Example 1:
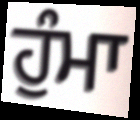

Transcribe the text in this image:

ਹੁੰਮਾ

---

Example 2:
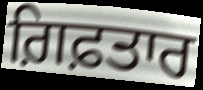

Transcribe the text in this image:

ਗ਼ਿਫ਼ਤਾਰ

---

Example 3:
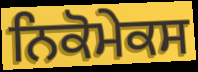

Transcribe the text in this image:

ਨਿਕੋਮੇਕਸ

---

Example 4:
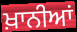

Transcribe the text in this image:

ਖ਼ਾਨੀਆਂ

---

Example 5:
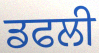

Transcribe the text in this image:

ਡਫਲੀ